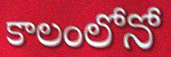
కాలంలోనో